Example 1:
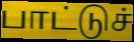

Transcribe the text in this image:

பாட்டுச்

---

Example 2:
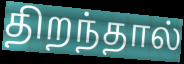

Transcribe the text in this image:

திறந்தால்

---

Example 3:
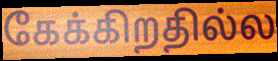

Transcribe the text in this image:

கேக்கிறதில்ல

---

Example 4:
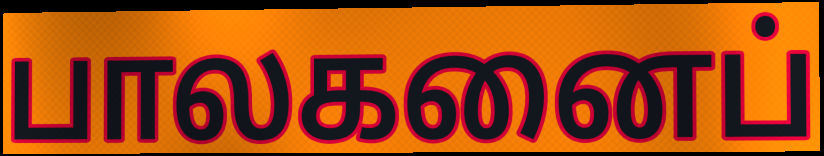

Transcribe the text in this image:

பாலகனைப்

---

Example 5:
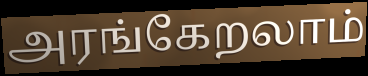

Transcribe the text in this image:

அரங்கேறலாம்